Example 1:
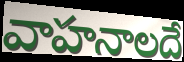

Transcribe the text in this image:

వాహనాలదే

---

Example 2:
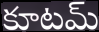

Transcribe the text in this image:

కూటమ్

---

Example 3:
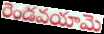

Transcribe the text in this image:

రెండవయామె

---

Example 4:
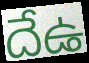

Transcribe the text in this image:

దేఉ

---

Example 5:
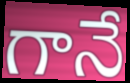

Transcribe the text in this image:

గానే